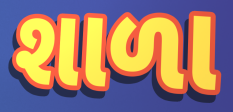
શાળા